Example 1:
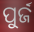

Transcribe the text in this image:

ପୁର୍ଜ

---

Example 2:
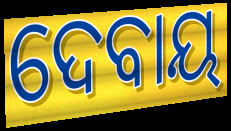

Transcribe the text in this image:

ଦେବାୟ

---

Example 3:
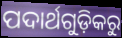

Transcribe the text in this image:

ପଦାର୍ଥଗୁଡ଼ିକରୁ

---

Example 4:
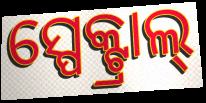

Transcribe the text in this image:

ସ୍ପେକ୍ଟ୍ରାଲ୍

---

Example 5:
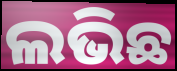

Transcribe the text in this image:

ଲଭିଛ